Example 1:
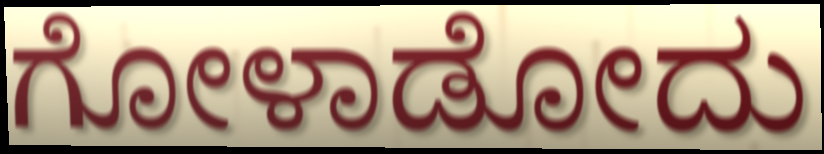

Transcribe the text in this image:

ಗೋಳಾಡೋದು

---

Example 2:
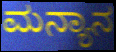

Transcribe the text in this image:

ಮನ್ಯಾನ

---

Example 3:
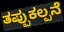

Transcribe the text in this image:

ತಪ್ಪುಕಲ್ಪನೆ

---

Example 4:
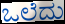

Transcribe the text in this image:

ಒಲೆದು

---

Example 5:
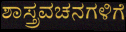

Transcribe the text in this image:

ಶಾಸ್ತ್ರವಚನಗಳಿಗೆ